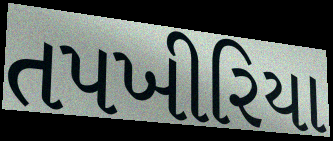
તપખીરિયા